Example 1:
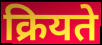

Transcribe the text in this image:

क्रियते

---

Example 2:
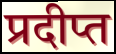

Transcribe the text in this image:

प्रदीप्त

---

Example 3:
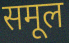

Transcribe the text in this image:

समूल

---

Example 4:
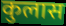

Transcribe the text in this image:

कुलास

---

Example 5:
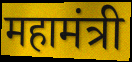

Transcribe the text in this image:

महामंत्री